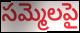
సమ్మెలపై